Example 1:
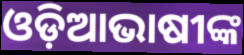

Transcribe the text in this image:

ଓଡ଼ିଆଭାଷୀଙ୍କ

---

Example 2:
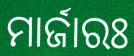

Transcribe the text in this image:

ମାର୍ଜାରଃ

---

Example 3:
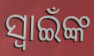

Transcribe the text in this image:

ସ୍ଵାଇଁଙ୍କ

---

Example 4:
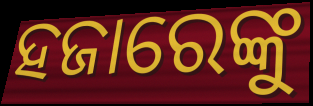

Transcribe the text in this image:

ହଜାରେଙ୍କୁ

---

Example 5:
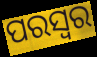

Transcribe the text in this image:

ପରସ୍ୱର